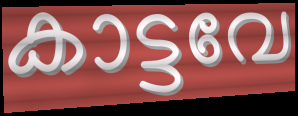
കാട്ടവേ